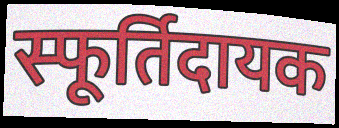
स्फूर्तिदायक